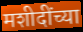
मशीदींच्या